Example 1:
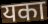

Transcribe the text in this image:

यका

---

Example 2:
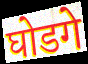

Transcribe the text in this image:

घोडगे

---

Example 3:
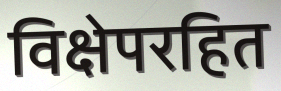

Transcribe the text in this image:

विक्षेपरहित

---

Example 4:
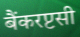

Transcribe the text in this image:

बैंकरप्टसी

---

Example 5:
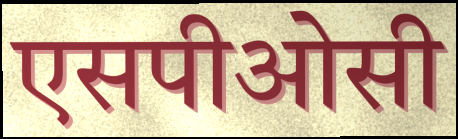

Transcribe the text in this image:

एसपीओसी